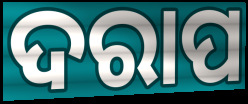
ଦରାପ